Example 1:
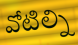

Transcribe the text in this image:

వోటిల్ని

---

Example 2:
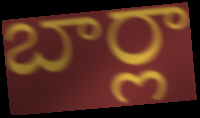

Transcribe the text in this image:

బార్లా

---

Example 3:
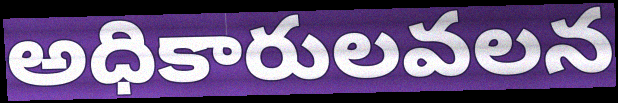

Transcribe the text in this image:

అధికారులవలన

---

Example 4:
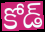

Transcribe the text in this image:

కోడ్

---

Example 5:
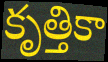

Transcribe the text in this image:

కృత్తికా